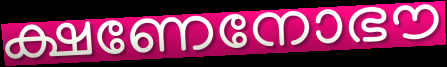
ക്ഷണേനോഭൗ